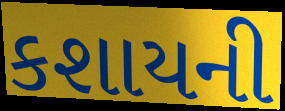
કશાયની